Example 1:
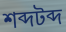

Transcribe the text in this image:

শব্দটব্দ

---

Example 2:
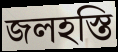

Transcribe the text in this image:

জলহস্তি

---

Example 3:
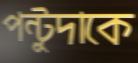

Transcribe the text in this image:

পন্টুদাকে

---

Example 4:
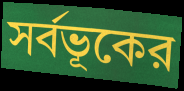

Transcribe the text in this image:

সর্বভূকের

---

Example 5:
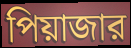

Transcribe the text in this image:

পিয়াজার